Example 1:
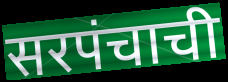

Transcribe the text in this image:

सरपंचाची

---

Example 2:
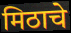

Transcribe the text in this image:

मिठाचे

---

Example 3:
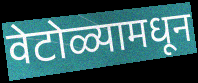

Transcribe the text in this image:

वेटोळ्यामधून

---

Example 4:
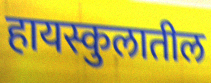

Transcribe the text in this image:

हायस्कुलातील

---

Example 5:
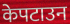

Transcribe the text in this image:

केपटाउन